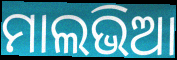
ମାଲଭିଆ